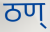
ठण्